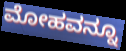
ಮೋಹವನ್ನೂ